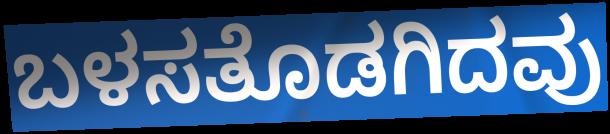
ಬಳಸತೊಡಗಿದವು